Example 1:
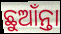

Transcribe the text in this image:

ଛୁଆଁନ୍ତା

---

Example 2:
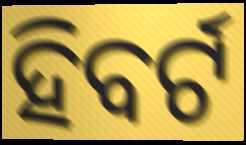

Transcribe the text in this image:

ହିବର୍ଟ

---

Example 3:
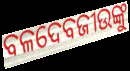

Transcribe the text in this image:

ବଳଦେବଜୀଉଙ୍କୁ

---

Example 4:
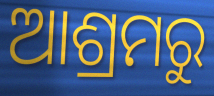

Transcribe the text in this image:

ଆଶ୍ରମରୁ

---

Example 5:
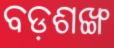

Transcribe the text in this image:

ବଡ଼ଶଙ୍ଖ